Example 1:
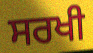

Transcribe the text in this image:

ਸਰਖੀ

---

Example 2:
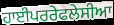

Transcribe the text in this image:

ਹਾਈਪਰਰੇਫਲੇਸੀਆ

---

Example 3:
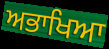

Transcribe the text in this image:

ਅਭਾਖਿਆ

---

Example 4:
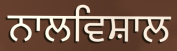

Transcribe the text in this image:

ਨਾਲਵਿਸ਼ਾਲ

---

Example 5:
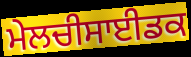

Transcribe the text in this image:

ਮੇਲਚੀਸਾਈਡਕ